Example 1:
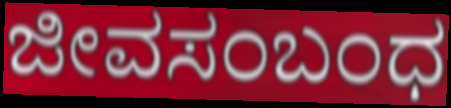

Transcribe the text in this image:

ಜೀವಸಂಬಂಧ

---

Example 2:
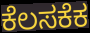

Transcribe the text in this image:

ಕೆಲಸಕೆಕ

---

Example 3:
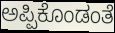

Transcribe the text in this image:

ಅಪ್ಪಿಕೊಂಡಂತೆ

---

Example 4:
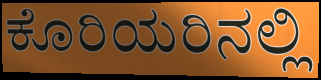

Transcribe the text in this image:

ಕೊರಿಯರಿನಲ್ಲಿ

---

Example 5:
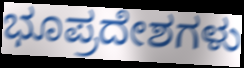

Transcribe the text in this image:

ಭೂಪ್ರದೇಶಗಳು